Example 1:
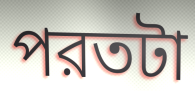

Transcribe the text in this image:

পরতটা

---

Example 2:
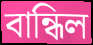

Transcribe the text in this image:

বান্ধিল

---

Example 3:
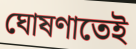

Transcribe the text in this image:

ঘোষণাতেই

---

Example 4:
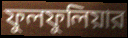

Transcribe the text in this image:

ফুলফুলিয়ার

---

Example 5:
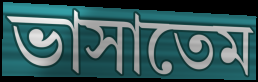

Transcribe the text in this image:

ভাসাতেম